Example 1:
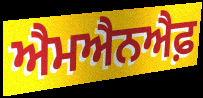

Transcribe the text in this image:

ਐਮਐਨਐਫ਼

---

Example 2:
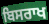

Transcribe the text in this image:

ਬਿਸਰਾਖ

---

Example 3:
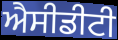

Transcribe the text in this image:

ਐਸੀਡੀਟੀ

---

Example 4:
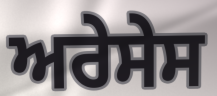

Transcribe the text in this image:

ਅਰੇਸੇਸ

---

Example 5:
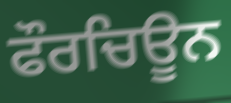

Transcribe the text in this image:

ਫੌਰਚਿਊਨ